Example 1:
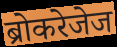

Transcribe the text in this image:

ब्रोकरेजेज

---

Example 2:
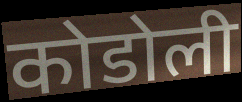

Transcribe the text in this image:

कोडोली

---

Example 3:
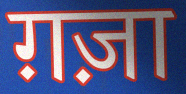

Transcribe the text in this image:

ग़ज़ा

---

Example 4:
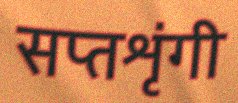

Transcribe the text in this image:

सप्तशृंगी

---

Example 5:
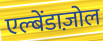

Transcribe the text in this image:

एल्बेंडाज़ोल